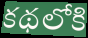
కథలోకి